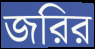
জরির